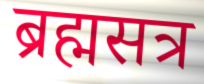
ब्रह्मसत्र